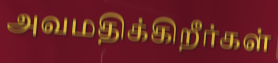
அவமதிக்கிறீர்கள்